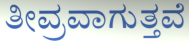
ತೀವ್ರವಾಗುತ್ತವೆ